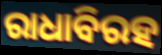
ରାଧାବିରହ